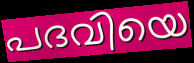
പദവിയെ